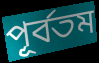
পূর্বতম